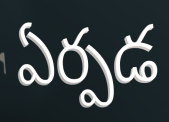
ఏర్పడ